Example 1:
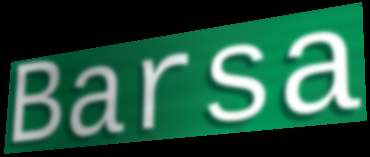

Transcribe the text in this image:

Barsa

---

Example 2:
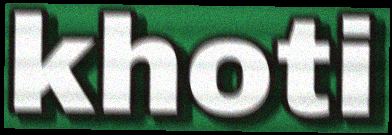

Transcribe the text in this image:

khoti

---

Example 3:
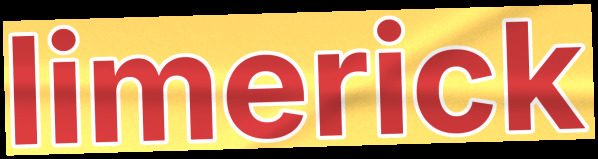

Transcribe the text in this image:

limerick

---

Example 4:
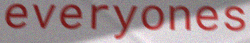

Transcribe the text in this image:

everyones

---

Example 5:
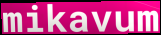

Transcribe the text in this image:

mikavum